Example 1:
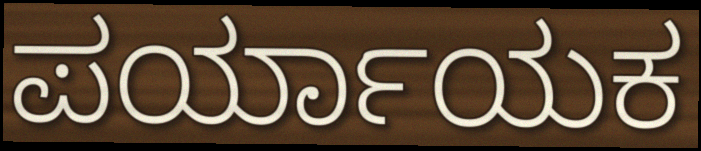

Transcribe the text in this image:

ಪರ್ಯಾಯಕ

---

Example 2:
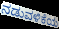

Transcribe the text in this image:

ನಡುವಳಿಕೆಯ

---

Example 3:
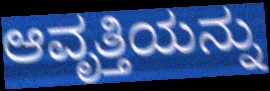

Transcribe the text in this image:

ಆವೃತ್ತಿಯನ್ನು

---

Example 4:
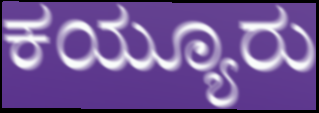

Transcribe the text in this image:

ಕಯ್ಯೂರು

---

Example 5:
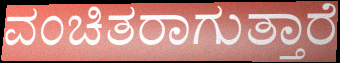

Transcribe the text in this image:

ವಂಚಿತರಾಗುತ್ತಾರೆ